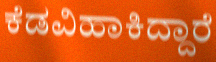
ಕೆಡವಿಹಾಕಿದ್ದಾರೆ